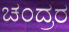
ಚಂದ್ರರ